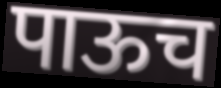
पाऊच